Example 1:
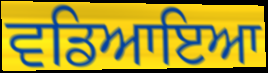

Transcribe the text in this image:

ਵਡਿਆਇਆ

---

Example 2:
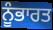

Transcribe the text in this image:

ਨੂੰਭਾਰਤ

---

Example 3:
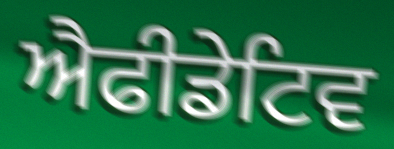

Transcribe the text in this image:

ਐਫੀਡੇਟਿਵ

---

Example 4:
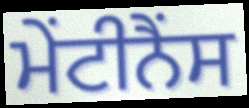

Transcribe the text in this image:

ਮੇਂਟੀਨੈਂਸ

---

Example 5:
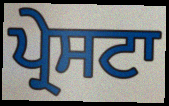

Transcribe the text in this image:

ਪ੍ਰੇਸਟਾ